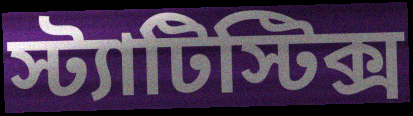
স্ট্যাটিস্টিক্স